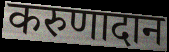
करुणादान